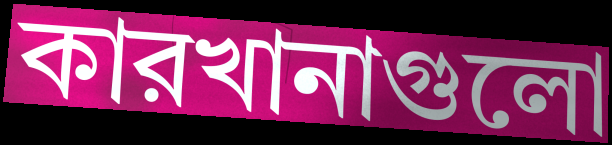
কারখানাগুলো